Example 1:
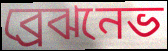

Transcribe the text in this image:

ব্রেঝনেভ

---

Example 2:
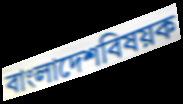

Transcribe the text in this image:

বাংলাদেশবিষয়ক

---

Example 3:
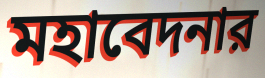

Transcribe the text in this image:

মহাবেদনার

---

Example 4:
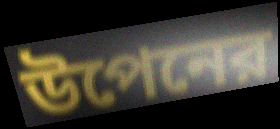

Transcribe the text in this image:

উপেনের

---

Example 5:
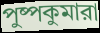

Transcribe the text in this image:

পুষ্পকুমারা